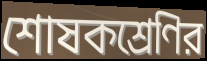
শোষকশ্রেণির